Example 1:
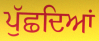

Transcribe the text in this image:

ਪੁੱਛਦਿਆਂ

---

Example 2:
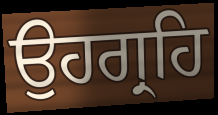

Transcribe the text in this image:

ਉਹਗ੍ਰਹਿ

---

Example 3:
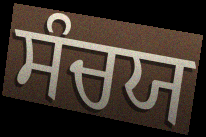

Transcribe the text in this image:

ਸੰਚਯ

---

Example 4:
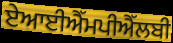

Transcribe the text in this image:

ਏਆਈਐੱਮਪੀਐੱਲਬੀ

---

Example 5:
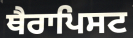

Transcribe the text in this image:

ਥੈਰਾਪਿਸਟ